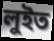
লুইত